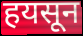
हयसून